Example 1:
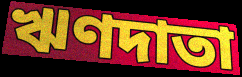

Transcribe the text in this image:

ঋণদাতা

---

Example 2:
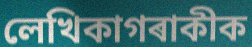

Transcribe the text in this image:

লেখিকাগৰাকীক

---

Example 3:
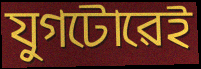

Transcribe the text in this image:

যুগটোৱেই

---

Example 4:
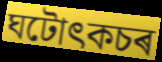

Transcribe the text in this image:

ঘটোৎকচৰ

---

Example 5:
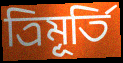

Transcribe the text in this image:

ত্ৰিমূৰ্তি